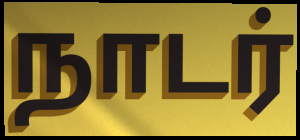
நாடர்